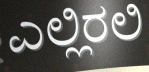
ಎಲ್ಲಿರಲಿ